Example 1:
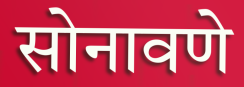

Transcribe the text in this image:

सोनावणे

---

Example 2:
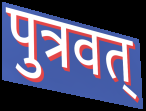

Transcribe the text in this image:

पुत्रवत्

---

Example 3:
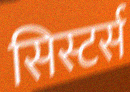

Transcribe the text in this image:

सिस्टर्स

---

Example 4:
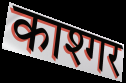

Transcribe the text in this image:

काश्गर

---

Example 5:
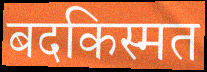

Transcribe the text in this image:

बदकिस्मत